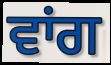
ਵਾਂਗ